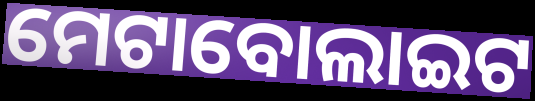
ମେଟାବୋଲାଇଟ